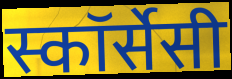
स्कॉर्सेसी